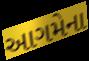
આગમેના